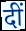
दीं